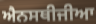
ਐਨਸਥੀਜੀਆ